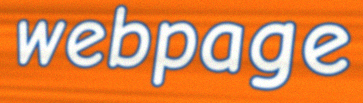
webpage